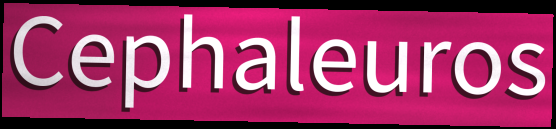
Cephaleuros